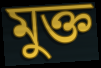
মুক্ত